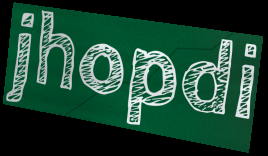
jhopdi